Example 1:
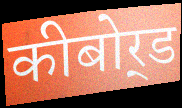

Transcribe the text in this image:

कीबोर्ड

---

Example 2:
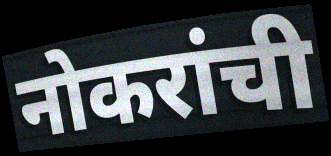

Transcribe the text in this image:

नोकरांची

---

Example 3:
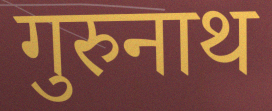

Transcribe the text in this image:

गुरुनाथ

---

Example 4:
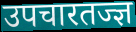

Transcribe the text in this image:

उपचारतज्ज्ञ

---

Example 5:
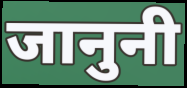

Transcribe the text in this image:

जानुनी